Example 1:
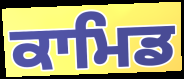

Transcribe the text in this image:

ਕਾਮਿਡ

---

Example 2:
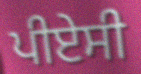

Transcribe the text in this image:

ਪੀਏਸੀ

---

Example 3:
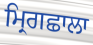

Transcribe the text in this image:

ਮ੍ਰਿਗਛਾਲਾ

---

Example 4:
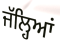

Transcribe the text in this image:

ਜੱਲ੍ਹਿਆਂ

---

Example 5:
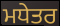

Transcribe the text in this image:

ਮਧੇਤਰ